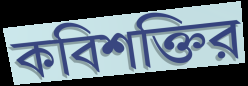
কবিশক্তির